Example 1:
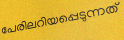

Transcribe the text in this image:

പേരിലറിയപ്പെടുന്നത്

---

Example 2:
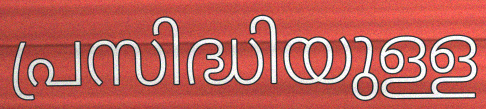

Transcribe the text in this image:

പ്രസിദ്ധിയുള്ള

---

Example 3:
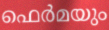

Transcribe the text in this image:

ഫെർമയും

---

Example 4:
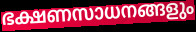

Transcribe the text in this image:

ഭക്ഷണസാധനങ്ങളും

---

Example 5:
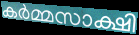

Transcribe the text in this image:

കർമ്മസാക്ഷി